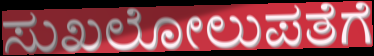
ಸುಖಲೋಲುಪತೆಗೆ